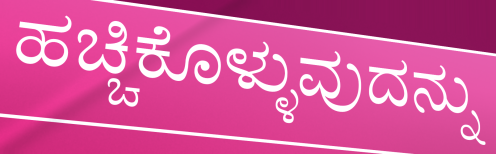
ಹಚ್ಚಿಕೊಳ್ಳುವುದನ್ನು